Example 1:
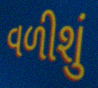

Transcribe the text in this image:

વળીશું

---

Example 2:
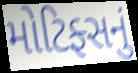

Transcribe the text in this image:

મોટિફ્સનું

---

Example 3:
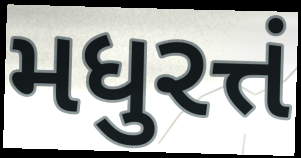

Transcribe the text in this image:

મધુરત્તં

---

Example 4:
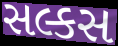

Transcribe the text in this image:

સલ્કસ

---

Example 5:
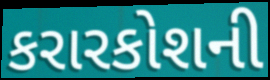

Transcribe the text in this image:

કરારકોશની